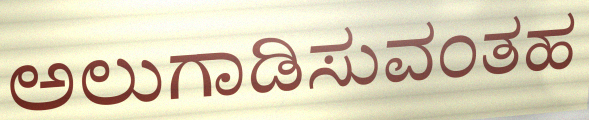
ಅಲುಗಾಡಿಸುವಂತಹ